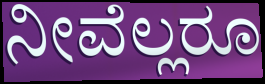
ನೀವೆಲ್ಲರೂ